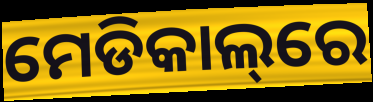
ମେଡିକାଲ୍‌ରେ